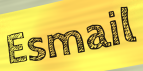
Esmail